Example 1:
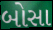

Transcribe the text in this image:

બોસા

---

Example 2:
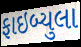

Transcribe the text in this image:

ફાઇબ્યુલા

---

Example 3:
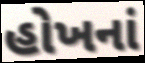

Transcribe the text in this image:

હોખનાં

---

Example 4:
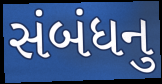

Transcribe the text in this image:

સંબંધનુ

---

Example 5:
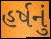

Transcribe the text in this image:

હર્ષનું